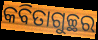
କବିତାଗୁଚ୍ଛର